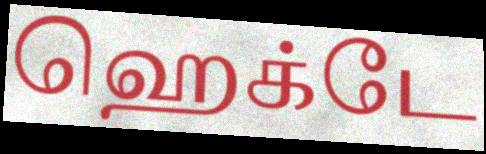
ஹெக்டே